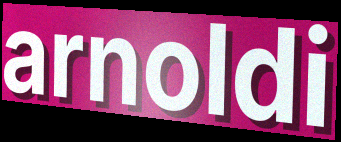
arnoldi